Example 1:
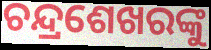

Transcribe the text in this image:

ଚନ୍ଦ୍ରଶେଖରଙ୍କୁ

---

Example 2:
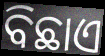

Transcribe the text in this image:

ବିଛାଏ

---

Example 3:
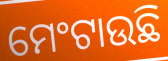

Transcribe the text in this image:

ମେଂଟାଉଛି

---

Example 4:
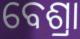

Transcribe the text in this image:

ବେଶ୍ରା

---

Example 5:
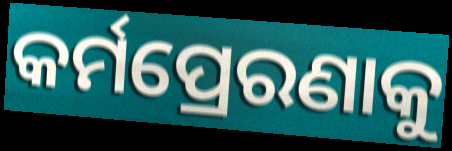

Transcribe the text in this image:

କର୍ମପ୍ରେରଣାକୁ